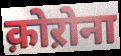
क़ोऱोना